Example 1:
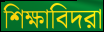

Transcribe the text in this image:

শিক্ষাবিদরা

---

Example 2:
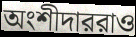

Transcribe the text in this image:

অংশীদাররাও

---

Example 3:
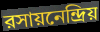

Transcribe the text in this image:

রসায়নেন্দ্রিয়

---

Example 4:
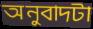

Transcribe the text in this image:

অনুবাদটা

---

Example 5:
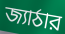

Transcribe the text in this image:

জ্যাঠার